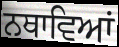
ਨਥਾਵਿਆਂ